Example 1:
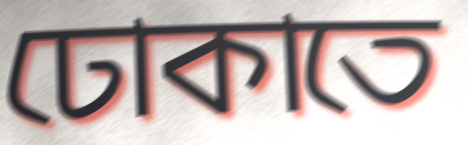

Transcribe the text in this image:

ঢোকাতে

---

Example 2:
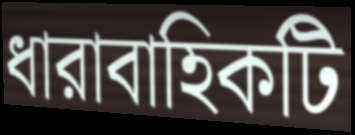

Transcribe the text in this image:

ধারাবাহিকটি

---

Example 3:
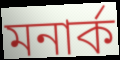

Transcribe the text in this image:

মনার্ক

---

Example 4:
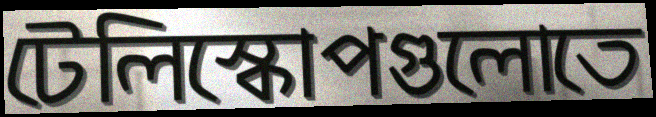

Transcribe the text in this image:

টেলিস্কোপগুলোতে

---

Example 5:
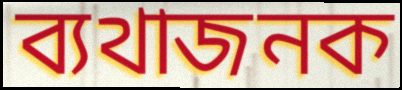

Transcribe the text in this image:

ব্যথাজনক